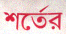
শর্তের